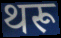
थरू